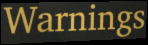
Warnings